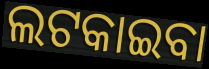
ଲଟକାଇବା